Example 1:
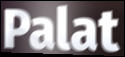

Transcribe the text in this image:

Palat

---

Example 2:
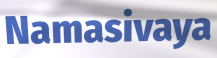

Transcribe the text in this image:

Namasivaya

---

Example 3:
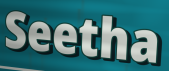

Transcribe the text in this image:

Seetha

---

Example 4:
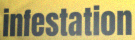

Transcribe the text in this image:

infestation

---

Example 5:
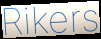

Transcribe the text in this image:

Rikers